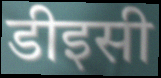
डीइसी